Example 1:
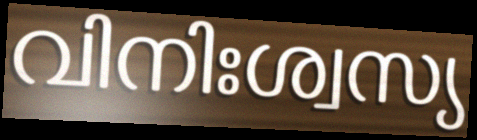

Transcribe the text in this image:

വിനിഃശ്വസ്യ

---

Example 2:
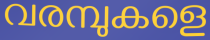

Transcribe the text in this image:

വരമ്പുകളെ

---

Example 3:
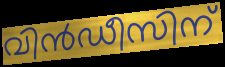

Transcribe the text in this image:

വിൻഡീസിന്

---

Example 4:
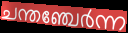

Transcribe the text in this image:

ചന്തഞ്ചേർന്ന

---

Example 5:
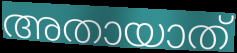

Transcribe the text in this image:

അതായാത്